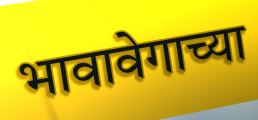
भावावेगाच्या